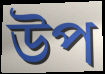
উপ